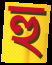
হু